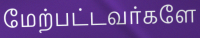
மேற்பட்டவர்களே